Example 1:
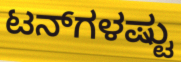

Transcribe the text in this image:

ಟನ್‌ಗಳಷ್ಟು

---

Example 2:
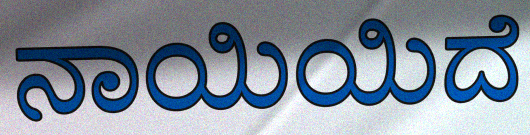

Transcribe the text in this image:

ನಾಯಿಯಿದೆ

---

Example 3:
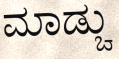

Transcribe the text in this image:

ಮಾಡ್ಚು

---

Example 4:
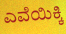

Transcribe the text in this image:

ಎವೆಯಿಕ್ಕಿ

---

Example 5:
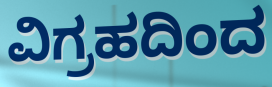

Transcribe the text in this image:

ವಿಗ್ರಹದಿಂದ